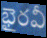
భైరవీ